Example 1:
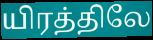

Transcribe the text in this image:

யிரத்திலே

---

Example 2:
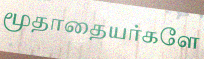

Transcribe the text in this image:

மூதாதையர்களே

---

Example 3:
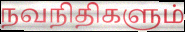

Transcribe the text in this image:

நவநிதிகளும்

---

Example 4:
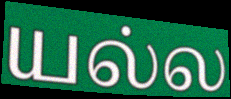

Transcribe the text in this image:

யல்ல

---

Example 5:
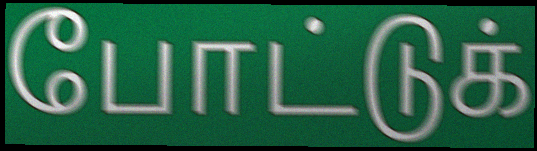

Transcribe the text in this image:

போட்டுக்